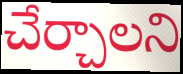
చేర్చాలని